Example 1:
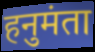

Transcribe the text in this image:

हनुमंता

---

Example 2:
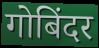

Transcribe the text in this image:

गोबिंदर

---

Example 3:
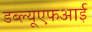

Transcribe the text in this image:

डब्ल्यूएफआई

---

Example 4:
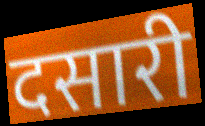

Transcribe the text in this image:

दसारी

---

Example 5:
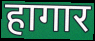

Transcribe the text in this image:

हागार